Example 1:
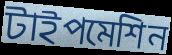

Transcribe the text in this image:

টাইপমেশিন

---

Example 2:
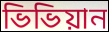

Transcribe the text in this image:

ভিভিয়ান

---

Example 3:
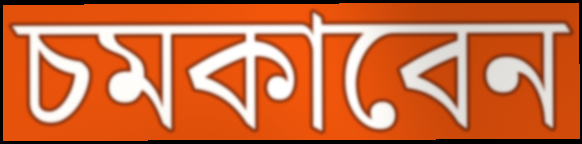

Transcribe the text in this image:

চমকাবেন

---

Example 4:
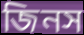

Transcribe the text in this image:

জিনস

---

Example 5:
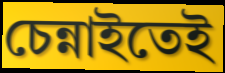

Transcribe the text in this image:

চেন্নাইতেই